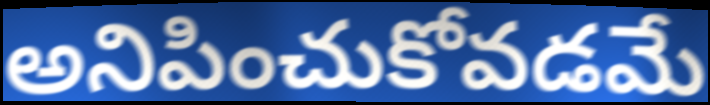
అనిపించుకోవడమే